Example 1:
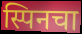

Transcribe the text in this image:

स्पिनचा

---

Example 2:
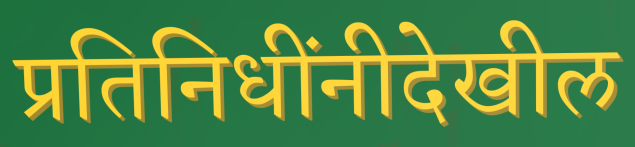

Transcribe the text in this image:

प्रतिनिधींनीदेखील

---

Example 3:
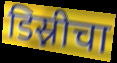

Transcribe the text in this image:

डिस्नीचा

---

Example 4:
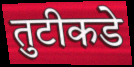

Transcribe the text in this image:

तुटीकडे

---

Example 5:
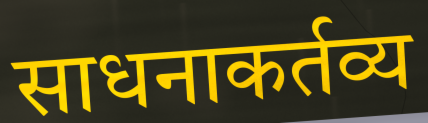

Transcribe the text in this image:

साधनाकर्तव्य